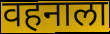
वहनाला